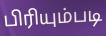
பிரியும்படி